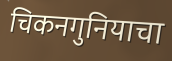
चिकनगुनियाचा